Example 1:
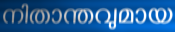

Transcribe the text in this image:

നിതാന്തവുമായ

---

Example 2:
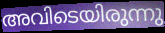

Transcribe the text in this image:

അവിടെയിരുന്നു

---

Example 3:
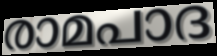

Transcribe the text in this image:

രാമപാദ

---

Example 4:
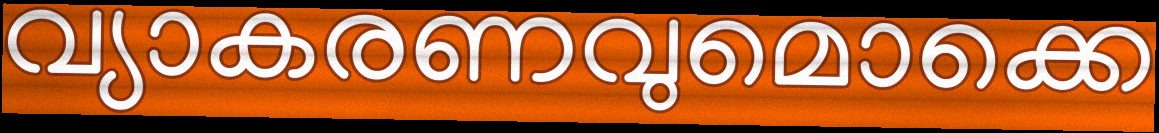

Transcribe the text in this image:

വ്യാകരണവുമൊക്കെ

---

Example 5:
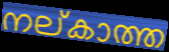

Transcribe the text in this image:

നല്കാത്ത